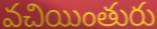
వచియింతురు